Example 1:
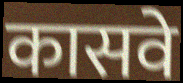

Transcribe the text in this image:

कासवे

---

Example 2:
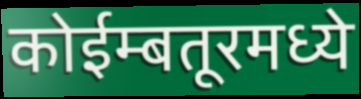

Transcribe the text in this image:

कोईम्बतूरमध्ये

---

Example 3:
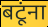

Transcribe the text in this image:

बटूंना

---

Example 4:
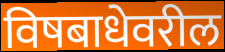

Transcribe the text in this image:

विषबाधेवरील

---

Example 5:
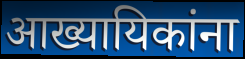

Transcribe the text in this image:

आख्यायिकांना